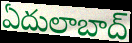
ఏదులాబాద్